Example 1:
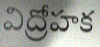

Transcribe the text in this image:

విద్రోహక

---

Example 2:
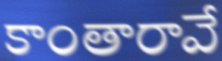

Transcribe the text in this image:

కాంతారావే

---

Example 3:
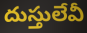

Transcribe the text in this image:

దుస్తులేవీ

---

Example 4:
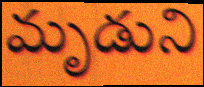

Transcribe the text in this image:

మృడుని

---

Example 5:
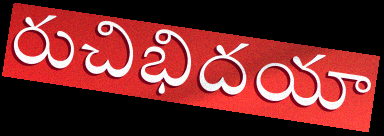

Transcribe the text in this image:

రుచిభిదయా